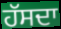
ਹੱਸਦਾ